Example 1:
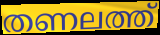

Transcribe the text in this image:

തണലത്ത്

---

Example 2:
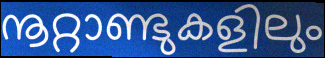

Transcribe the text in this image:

നൂറ്റാണ്ടുകളിലും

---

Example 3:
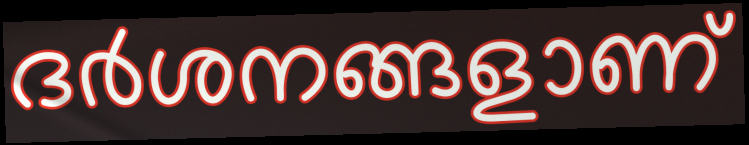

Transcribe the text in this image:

ദർശനങ്ങളാണ്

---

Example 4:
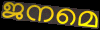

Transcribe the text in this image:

ജനമെ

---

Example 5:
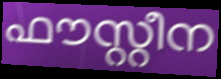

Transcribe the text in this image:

ഫൗസ്റ്റീന